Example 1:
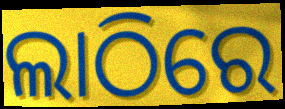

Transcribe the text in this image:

ଲାଠିରେ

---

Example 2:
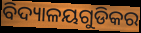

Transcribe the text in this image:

ବିଦ୍ୟାଳୟଗୁଡିକର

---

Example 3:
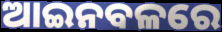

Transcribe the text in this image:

ଆଇନବଳରେ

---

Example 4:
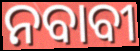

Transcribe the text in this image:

ନବାବୀ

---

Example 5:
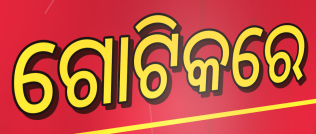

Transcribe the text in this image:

ଗୋଟିକରେ